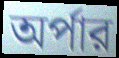
অর্পার